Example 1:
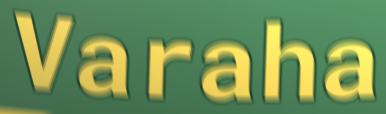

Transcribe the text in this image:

Varaha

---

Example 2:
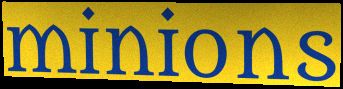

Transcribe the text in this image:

minions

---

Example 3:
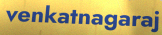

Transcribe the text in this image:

venkatnagaraj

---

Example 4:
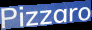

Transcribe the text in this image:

Pizzaro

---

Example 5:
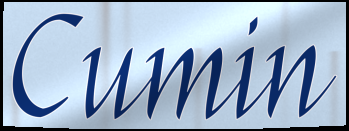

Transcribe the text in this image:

Cumin